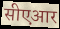
सीएआर